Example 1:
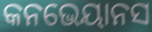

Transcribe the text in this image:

କନଭେୟାନସ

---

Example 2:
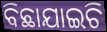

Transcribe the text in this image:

ବିଛାଯାଇଚି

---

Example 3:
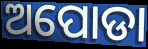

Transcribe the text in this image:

ଅପୋଡା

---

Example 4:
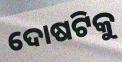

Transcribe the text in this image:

ଦୋଷଟିକୁ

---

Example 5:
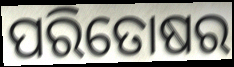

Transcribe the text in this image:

ପରିତୋଷର